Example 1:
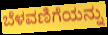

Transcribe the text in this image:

ಬೆಳವಣಿಗೆಯನ್ನು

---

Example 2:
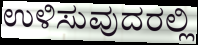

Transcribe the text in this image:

ಉಳಿಸುವುದರಲ್ಲಿ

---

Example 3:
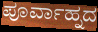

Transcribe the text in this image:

ಪೂರ್ವಾಹ್ನದ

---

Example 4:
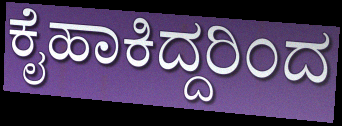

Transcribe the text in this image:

ಕೈಹಾಕಿದ್ದರಿಂದ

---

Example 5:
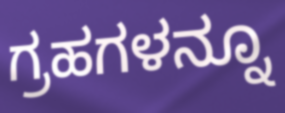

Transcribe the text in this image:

ಗ್ರಹಗಳನ್ನೂ